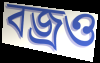
বজ্রও